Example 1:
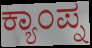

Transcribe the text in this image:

ಕ್ಯಾಂಪ್ನ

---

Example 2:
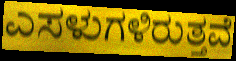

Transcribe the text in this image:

ಎಸಳುಗಳಿರುತ್ತವೆ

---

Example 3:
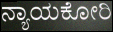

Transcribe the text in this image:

ನ್ಯಾಯಕೋರಿ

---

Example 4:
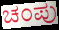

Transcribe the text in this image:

ಚಂಪು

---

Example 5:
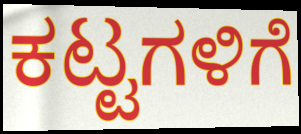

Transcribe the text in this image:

ಕಟ್ಟಗಳಿಗೆ